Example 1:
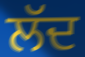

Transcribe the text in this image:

ਲੱਦ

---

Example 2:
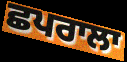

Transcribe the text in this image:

ਛਪਰਾਲਾ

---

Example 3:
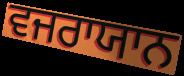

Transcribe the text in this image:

ਵਜਰਾਯਾਨ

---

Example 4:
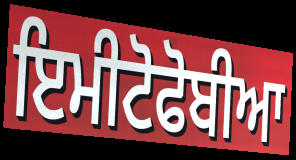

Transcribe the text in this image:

ਇਮੀਟੋਫੋਬੀਆ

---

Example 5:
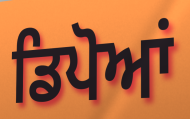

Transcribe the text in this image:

ਡਿਪੋਆਂ